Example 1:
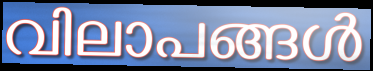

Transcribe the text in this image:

വിലാപങ്ങൾ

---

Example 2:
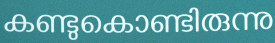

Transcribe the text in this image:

കണ്ടുകൊണ്ടിരുന്നു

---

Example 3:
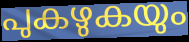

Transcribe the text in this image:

പുകഴുകയും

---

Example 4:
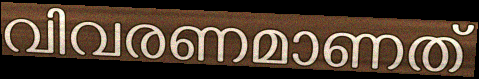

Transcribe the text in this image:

വിവരണമാണത്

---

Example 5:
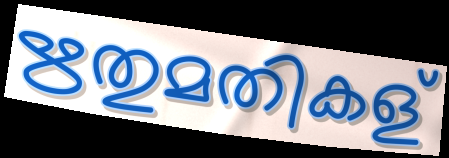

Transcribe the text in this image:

ഋതുമതികള്